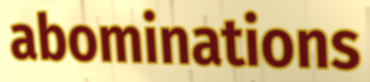
abominations